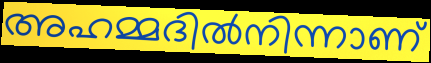
അഹമ്മദിൽനിന്നാണ്